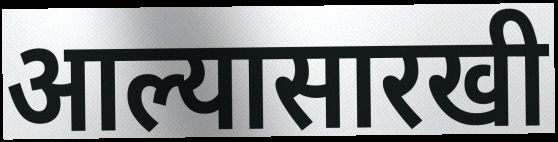
आल्यासारखी